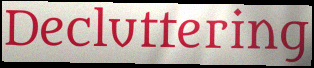
Decluttering